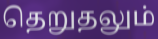
தெறுதலும்